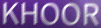
KHOOR